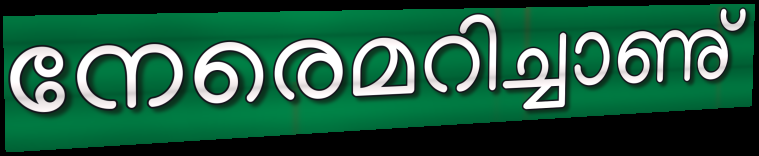
നേരെമറിച്ചാണു്